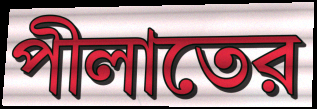
পীলাতের